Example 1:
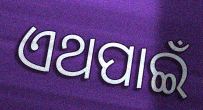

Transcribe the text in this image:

ଏଥପାଇଁ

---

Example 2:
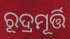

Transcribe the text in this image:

ରୂଦ୍ରମୂର୍ତ୍ତି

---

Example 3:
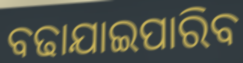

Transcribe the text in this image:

ବଢାଯାଇପାରିବ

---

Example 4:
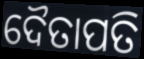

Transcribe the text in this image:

ଦୈତାପତି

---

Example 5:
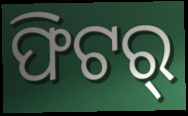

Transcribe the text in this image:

ଫିଟର୍